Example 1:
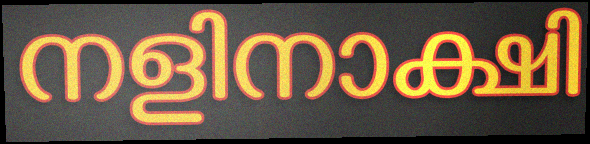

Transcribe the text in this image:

നളിനാക്ഷി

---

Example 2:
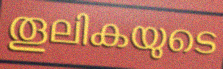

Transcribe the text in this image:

തൂലികയുടെ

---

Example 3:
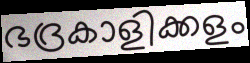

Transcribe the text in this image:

ഭദ്രകാളിക്കളം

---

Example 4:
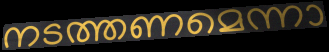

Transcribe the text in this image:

നടത്തണമെന്നാ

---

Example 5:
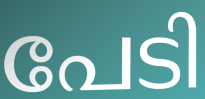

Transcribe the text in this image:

പേടി